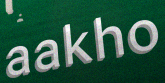
aakho